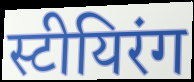
स्टीयिरंग